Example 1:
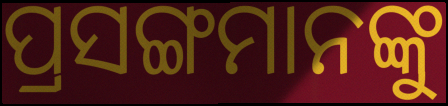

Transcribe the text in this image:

ପ୍ରସଙ୍ଗମାନଙ୍କୁ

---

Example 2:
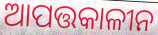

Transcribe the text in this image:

ଆପତ୍ତକାଳୀନ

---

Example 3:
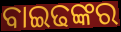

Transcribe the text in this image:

ବାଇଢଙ୍କର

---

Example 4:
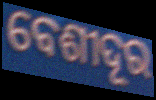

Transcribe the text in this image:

ବେଶୀଦୂର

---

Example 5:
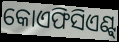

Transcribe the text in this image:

କୋଏଫିସିଏଣ୍ଟ୍